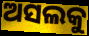
ଅସଲକୁ